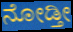
ನೋಡ್ತೀ